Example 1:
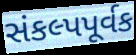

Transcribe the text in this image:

સંકલ્પપૂર્વક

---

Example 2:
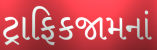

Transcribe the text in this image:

ટ્રાફિકજામનાં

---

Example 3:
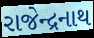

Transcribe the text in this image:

રાજેન્દ્રનાથ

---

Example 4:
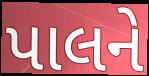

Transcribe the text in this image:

પાલને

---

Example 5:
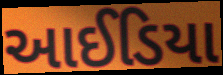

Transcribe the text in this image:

આઈડિયા